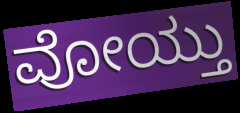
ವೋಯ್ತು